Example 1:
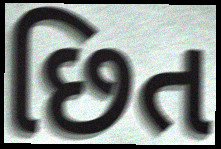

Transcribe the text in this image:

છિત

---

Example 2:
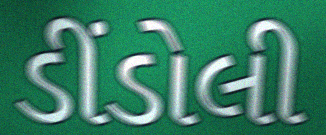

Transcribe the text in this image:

ડીંડોલી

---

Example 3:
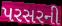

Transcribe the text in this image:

પરસરની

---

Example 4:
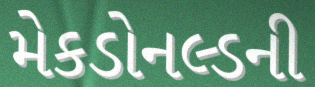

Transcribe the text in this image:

મેકડોનલ્ડની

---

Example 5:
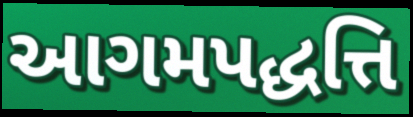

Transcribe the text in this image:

આગમપદ્ધત્તિ